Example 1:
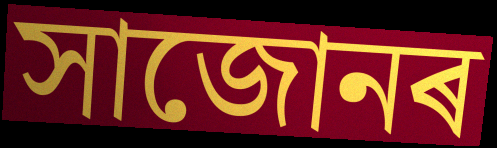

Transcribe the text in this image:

সাজোনৰ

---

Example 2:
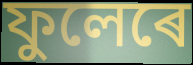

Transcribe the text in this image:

ফুলেৰে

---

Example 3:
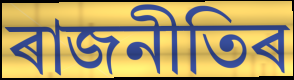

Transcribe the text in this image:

ৰাজনীতিৰ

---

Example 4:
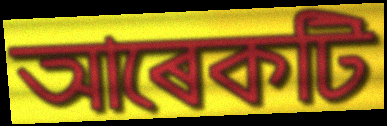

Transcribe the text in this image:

আৰেকটি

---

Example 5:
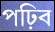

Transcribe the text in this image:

পঢ়িব